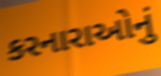
કરનારાઓનું